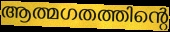
ആത്മഗതത്തിന്റെ